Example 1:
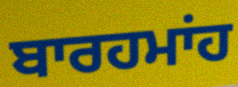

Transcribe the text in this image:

ਬਾਰਹਮਾਂਹ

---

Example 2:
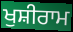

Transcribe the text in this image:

ਖੁਸ਼ੀਰਾਮ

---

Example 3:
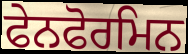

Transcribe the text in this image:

ਫੇਨਫੋਰਮਿਨ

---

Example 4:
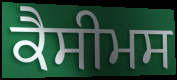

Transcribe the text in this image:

ਕੈਸੀਮਸ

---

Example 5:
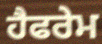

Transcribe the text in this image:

ਹੈਫਰੇਮ